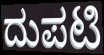
ದುಪಟಿ